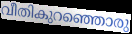
വീതികുറഞ്ഞൊരു